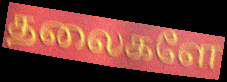
தலைகளே